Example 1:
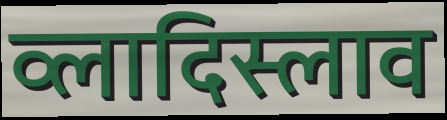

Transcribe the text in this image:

व्लादिस्लाव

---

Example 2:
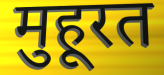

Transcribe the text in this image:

मुहूरत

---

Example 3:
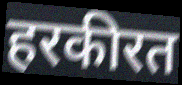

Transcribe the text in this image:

हरकीरत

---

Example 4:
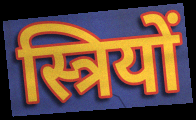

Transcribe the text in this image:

स्त्रियों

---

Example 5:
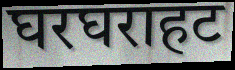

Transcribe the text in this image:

घरघराहट